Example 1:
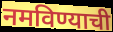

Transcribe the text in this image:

नमविण्याची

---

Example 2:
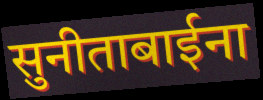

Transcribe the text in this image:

सुनीताबाईना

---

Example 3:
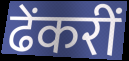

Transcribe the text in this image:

ढेंकरीं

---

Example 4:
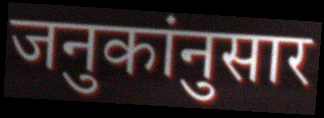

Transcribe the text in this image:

जनुकांनुसार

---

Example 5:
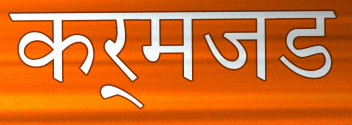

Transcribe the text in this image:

कर्मजड